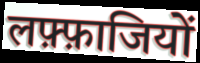
लफ़्फ़ाजियों